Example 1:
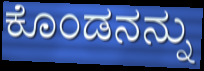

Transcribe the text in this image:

ಕೊಂಡನನ್ನು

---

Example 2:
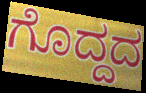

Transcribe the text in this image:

ಗೊದ್ದದ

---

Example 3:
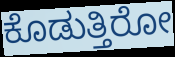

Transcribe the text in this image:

ಕೊಡುತ್ತಿರೋ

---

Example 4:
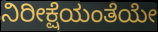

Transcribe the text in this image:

ನಿರೀಕ್ಷೆಯಂತೆಯೇ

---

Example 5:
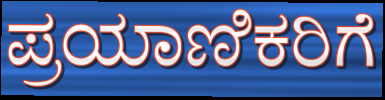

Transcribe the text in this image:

ಪ್ರಯಾಣಿಕರಿಗೆ